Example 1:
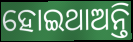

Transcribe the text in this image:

ହୋଇଥାଅନ୍ତି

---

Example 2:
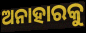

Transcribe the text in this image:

ଅନାହାରକୁ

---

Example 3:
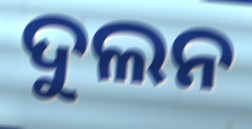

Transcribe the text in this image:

ଦୁଲନ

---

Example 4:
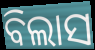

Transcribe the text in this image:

ବିଲାସ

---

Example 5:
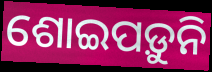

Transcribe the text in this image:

ଶୋଇପଡ଼ୁନି